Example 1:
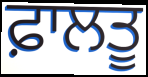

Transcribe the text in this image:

ਫ਼ਾਲਤੂ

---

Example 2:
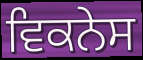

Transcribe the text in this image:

ਵਿਕਨੇਸ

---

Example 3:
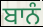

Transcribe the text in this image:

ਬਾਨੰ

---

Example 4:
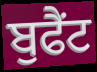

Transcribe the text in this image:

ਬੁਫੈਂਟ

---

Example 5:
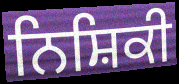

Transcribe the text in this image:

ਨਿਸ਼ਿਕੀ